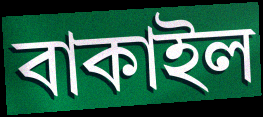
বাকাইল